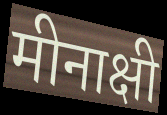
मीनाक्षी